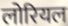
लोरियल